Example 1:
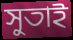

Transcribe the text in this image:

সুতাই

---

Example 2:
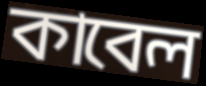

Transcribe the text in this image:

কাবেল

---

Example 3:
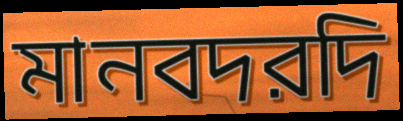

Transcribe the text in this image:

মানবদরদি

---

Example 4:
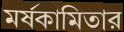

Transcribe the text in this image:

মর্ষকামিতার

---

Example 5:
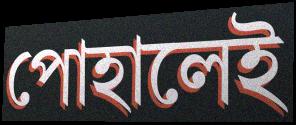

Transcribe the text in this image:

পোহালেই